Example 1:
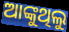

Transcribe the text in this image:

ଆଙ୍କୁଥିଲୁ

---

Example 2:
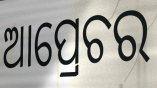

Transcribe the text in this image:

ଆପ୍ରେଚର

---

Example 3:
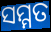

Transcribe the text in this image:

ସମ୍ମତ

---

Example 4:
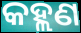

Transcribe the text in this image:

କହ୍ଲଣ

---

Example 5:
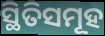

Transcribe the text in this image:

ସ୍ଥିତିସମୂହ